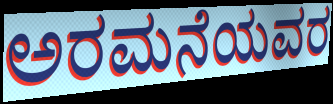
ಅರಮನೆಯವರ